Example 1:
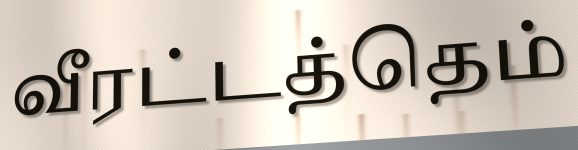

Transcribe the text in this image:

வீரட்டத்தெம்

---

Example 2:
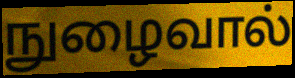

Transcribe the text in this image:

நுழைவால்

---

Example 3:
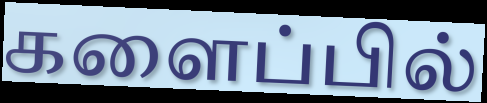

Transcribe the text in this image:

களைப்பில்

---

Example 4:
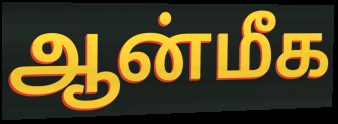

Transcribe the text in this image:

ஆன்மீக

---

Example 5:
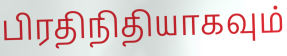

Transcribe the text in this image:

பிரதிநிதியாகவும்